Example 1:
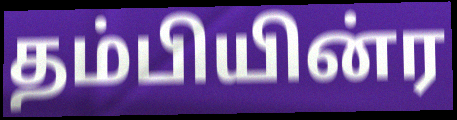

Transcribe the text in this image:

தம்பியின்ர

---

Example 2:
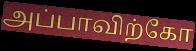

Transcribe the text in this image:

அப்பாவிற்கோ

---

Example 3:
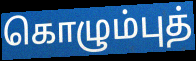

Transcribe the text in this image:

கொழும்புத்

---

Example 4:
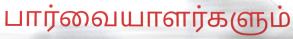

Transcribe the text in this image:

பார்வையாளர்களும்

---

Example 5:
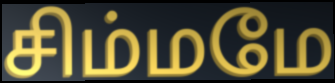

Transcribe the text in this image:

சிம்மமே